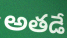
అతడే